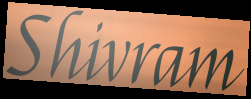
Shivram